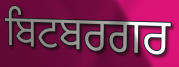
ਬਿਟਬਰਗਰ